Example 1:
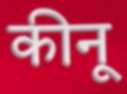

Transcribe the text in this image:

कीनू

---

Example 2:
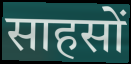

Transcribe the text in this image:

साहसों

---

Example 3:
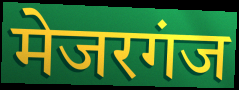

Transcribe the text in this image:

मेजरगंज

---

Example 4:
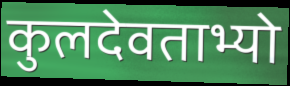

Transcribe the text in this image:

कुलदेवताभ्यो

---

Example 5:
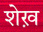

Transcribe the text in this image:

शेख़